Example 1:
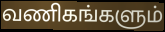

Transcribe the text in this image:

வணிகங்களும்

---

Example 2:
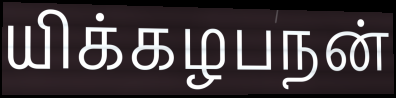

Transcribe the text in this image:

யிக்கழபநன்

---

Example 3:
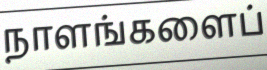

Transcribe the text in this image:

நாளங்களைப்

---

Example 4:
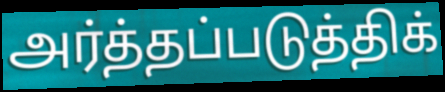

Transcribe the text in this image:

அர்த்தப்படுத்திக்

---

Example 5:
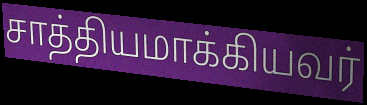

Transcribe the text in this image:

சாத்தியமாக்கியவர்